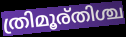
ത്രിമൂര്തിശ്ച